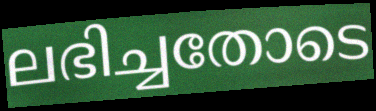
ലഭിച്ചതോടെ